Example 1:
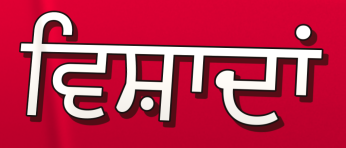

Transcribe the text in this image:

ਵਿਸ਼ਾਦਾਂ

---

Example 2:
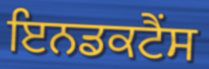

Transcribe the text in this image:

ਇਨਡਕਟੈਂਸ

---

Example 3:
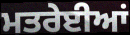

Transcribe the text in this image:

ਮਤਰੇਈਆਂ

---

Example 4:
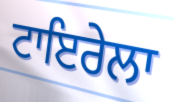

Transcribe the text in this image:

ਟਾਇਰੇਲਾ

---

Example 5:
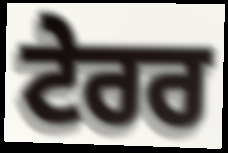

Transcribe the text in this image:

ਟੇਰਰ